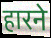
हारने